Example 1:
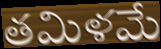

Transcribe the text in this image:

తమిళమే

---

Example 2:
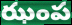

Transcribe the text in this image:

ఝంప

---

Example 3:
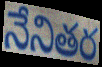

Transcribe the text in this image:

నేనితర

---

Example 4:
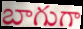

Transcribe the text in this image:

బాగుగా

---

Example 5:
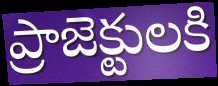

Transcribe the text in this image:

ప్రాజెక్టులకి